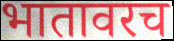
भातावरच